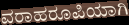
ವರಾಹರೂಪಿಯಾಗಿ